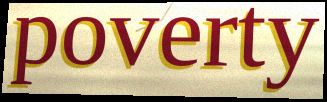
poverty